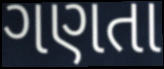
ગણતા